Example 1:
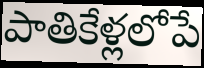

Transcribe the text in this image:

పాతికేళ్లలోపే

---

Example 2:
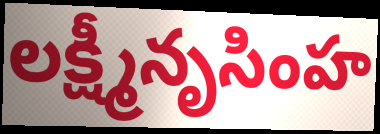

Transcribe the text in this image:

లక్ష్మీనృసింహ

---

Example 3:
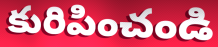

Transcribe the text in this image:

కురిపించండి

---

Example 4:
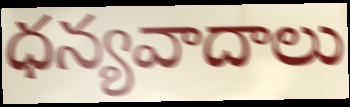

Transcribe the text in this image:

ధన్యవాదాలు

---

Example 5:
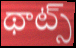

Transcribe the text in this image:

థాట్స్